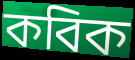
কবিক